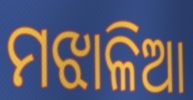
ମଝାଳିଆ